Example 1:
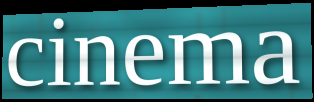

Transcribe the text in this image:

cinema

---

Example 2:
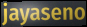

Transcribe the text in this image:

jayaseno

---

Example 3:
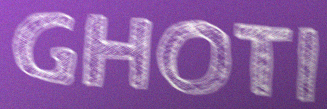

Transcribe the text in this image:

GHOTI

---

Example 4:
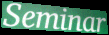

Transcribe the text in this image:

Seminar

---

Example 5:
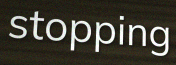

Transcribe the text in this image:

stopping